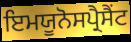
ਇਮਯੂਨੋਸਪ੍ਰੈਸੈਂਟ